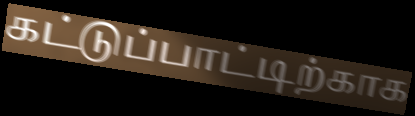
கட்டுப்பாட்டிற்காக